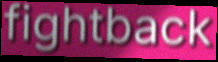
fightback